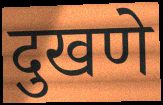
दुखणे